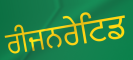
ਰੀਜਨਰੇਟਿਡ